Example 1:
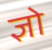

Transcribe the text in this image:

ज्ञो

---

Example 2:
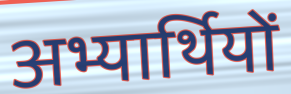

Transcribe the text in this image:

अभ्‍यार्थियों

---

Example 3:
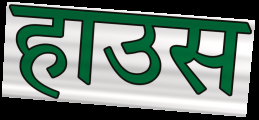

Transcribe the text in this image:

हाउस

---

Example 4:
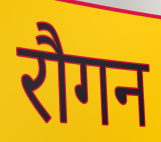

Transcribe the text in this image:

रौगन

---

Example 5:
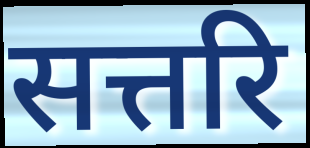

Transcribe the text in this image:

सत्तरि